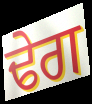
ਢੇਗ